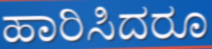
ಹಾರಿಸಿದರೂ